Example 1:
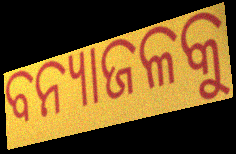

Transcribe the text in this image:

ବନ୍ୟାଜଳକୁ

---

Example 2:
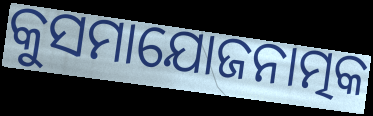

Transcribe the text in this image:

କୁସମାଯୋଜନାତ୍ମକ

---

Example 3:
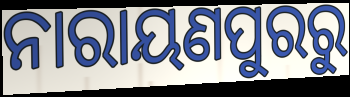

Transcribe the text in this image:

ନାରାୟଣପୁରରୁ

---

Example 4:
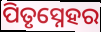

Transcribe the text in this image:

ପିତୃସ୍ନେହର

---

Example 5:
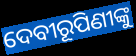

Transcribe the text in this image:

ଦେବୀରୂପିଣୀଙ୍କୁ